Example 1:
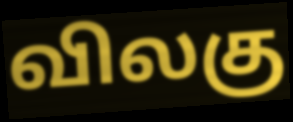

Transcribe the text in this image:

விலகு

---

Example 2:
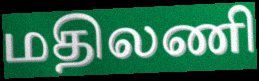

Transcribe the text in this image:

மதிலணி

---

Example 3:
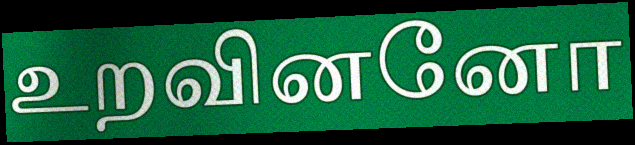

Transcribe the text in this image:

உறவினனோ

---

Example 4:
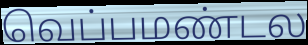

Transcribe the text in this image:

வெப்பமண்டல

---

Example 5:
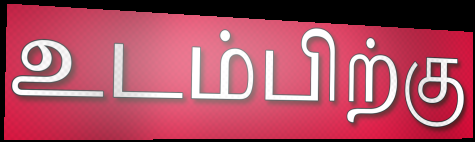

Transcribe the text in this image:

உடம்பிற்கு